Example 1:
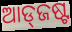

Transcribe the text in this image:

ଆଡ୍‌ଜଷ୍ଟ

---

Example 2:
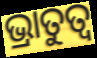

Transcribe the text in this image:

ଭ୍ରାତୁତ୍ଵ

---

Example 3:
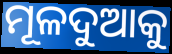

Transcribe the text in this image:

ମୂଳଦୁଆକୁ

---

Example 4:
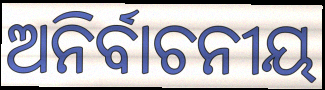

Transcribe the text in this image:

ଅନିର୍ବାଚନୀୟ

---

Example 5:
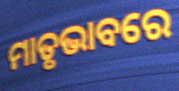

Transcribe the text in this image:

ମାତୃଭାବରେ